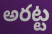
అరట్ట